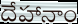
దేహానాం